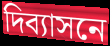
দিব্যাসনে